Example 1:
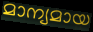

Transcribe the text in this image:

മാന്യമായ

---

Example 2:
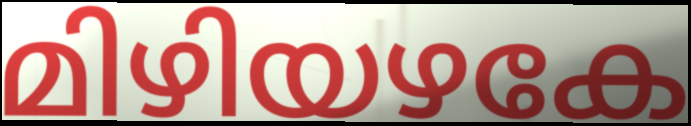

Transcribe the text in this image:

മിഴിയഴകേ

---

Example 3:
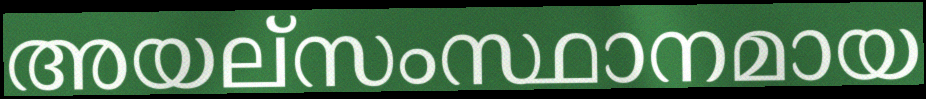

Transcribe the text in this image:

അയല്സംസ്ഥാനമായ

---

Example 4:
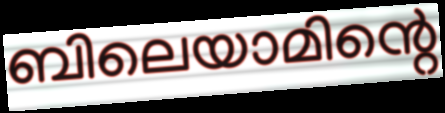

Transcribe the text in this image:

ബിലെയാമിന്റെ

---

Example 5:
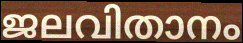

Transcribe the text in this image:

ജലവിതാനം